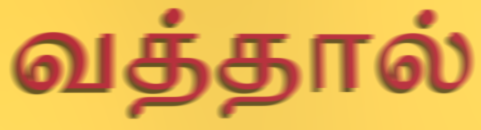
வத்தால்